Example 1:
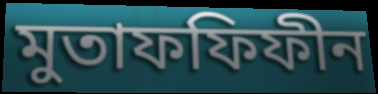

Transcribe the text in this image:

মুতাফফিফীন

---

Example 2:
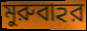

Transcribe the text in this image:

মুরুবাহর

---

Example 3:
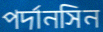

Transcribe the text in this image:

পর্দানসিন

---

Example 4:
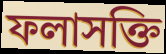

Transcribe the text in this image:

ফলাসক্তি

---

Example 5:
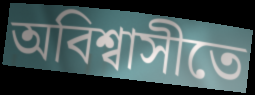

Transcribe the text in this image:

অবিশ্বাসীতে